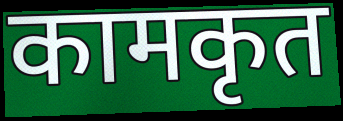
कामकृत